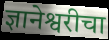
ज्ञानेश्वरीचा